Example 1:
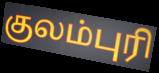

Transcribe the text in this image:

குலம்புரி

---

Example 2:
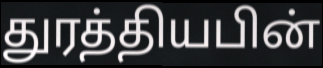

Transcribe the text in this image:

துரத்தியபின்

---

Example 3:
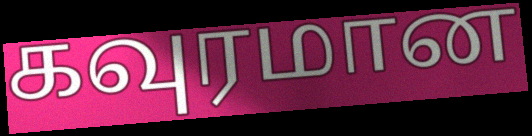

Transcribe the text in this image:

கவுரமான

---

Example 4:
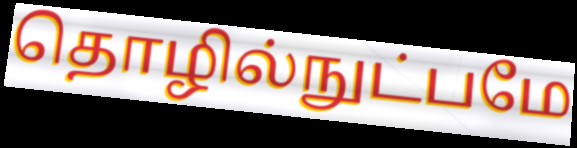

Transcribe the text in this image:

தொழில்நுட்பமே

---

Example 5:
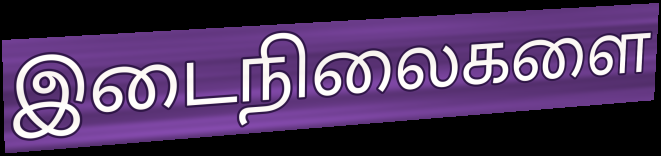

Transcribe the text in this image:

இடைநிலைகளை